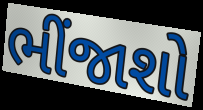
ભીંજાશો